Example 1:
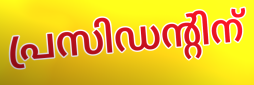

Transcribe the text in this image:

പ്രസിഡന്റിന്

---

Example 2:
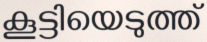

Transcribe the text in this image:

കൂട്ടിയെടുത്ത്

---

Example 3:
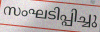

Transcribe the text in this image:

സംഘടിപ്പിച്ചു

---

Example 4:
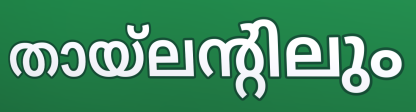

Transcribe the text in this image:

തായ്ലന്റിലും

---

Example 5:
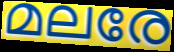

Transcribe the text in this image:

മലരേ